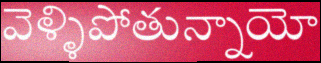
వెళ్ళిపోతున్నాయో